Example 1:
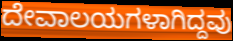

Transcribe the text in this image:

ದೇವಾಲಯಗಳಾಗಿದ್ದವು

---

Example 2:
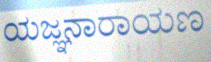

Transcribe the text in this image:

ಯಜ್ಞನಾರಾಯಣ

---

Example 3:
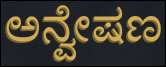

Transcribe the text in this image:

ಅನ್ವೇಷಣ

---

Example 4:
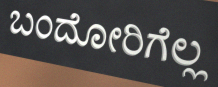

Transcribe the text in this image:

ಬಂದೋರಿಗೆಲ್ಲ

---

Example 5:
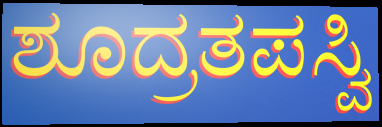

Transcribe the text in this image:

ಶೂದ್ರತಪಸ್ವಿ